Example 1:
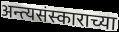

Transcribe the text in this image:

अन्त्यसंस्काराच्या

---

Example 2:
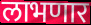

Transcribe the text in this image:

लाभणार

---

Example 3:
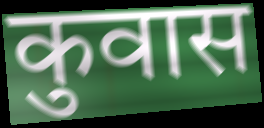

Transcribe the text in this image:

कुवास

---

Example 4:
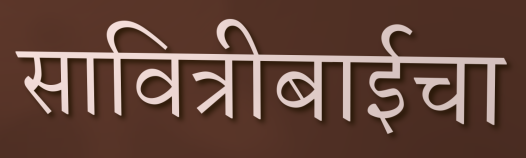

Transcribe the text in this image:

सावित्रीबाईचा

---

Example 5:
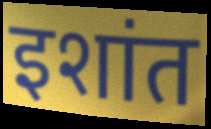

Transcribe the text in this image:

इशांत